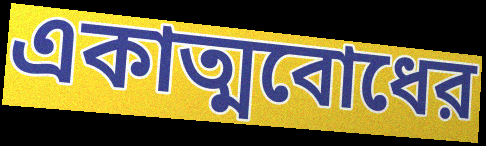
একাত্মবোধের